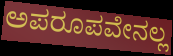
ಅಪರೂಪವೇನಲ್ಲ